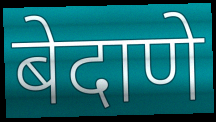
बेदाणे